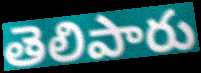
తెలిపారు